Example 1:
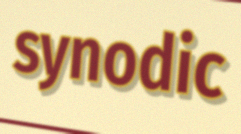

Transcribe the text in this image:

synodic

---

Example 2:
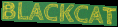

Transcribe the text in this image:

BLACKCAT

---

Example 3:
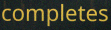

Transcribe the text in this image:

completes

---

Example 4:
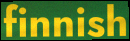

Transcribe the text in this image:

finnish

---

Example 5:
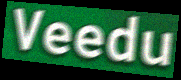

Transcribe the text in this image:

Veedu